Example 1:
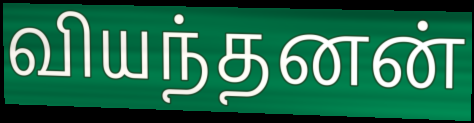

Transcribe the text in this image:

வியந்தனன்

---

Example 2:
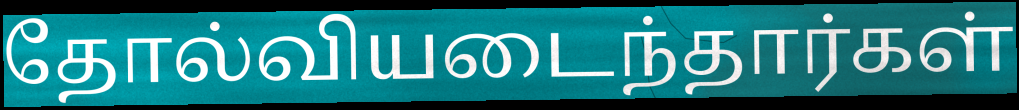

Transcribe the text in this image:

தோல்வியடைந்தார்கள்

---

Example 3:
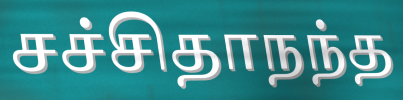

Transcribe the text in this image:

சச்சிதாநந்த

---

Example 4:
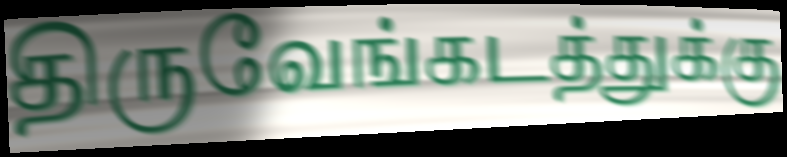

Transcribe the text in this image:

திருவேங்கடத்துக்கு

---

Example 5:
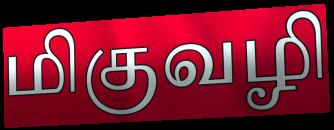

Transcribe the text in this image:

மிகுவழி